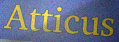
Atticus